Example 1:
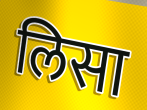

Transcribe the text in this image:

लिसा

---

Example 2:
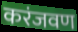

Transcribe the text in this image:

करंजवण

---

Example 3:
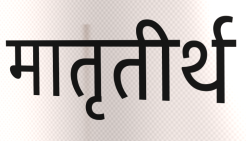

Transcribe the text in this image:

मातृतीर्थ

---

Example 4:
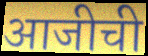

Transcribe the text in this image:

आजीची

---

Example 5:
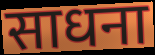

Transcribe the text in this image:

साधना